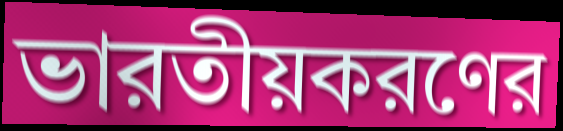
ভারতীয়করণের